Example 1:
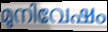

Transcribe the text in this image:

മുനിവേഷം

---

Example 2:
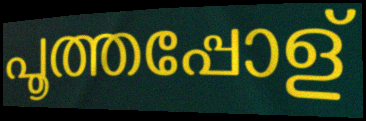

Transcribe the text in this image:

പൂത്തപ്പോള്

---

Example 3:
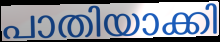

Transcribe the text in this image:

പാതിയാക്കി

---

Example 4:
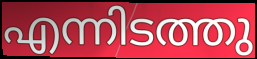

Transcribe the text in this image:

എന്നിടത്തു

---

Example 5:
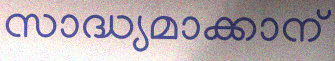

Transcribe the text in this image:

സാദ്ധ്യമാക്കാന്